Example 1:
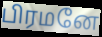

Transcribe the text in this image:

பிரமனே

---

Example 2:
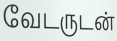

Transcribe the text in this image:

வேடருடன்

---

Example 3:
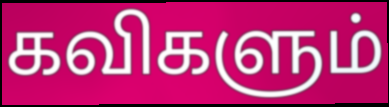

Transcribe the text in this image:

கவிகளும்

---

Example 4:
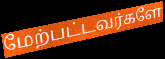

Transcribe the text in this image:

மேற்பட்டவர்களே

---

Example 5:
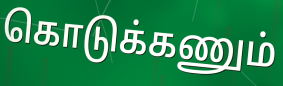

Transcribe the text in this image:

கொடுக்கணும்